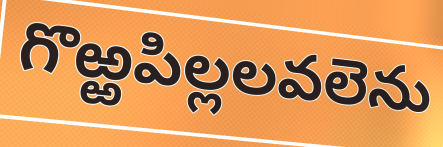
గొఱ్ఱపిల్లలవలెను